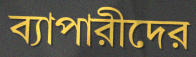
ব্যাপারীদের